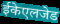
ईकेएलजेड